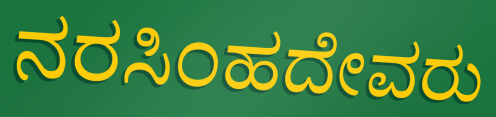
ನರಸಿಂಹದೇವರು